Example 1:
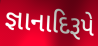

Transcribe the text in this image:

જ્ઞાનાદિરૂપે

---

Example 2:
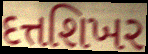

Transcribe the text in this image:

દત્તશિખર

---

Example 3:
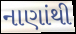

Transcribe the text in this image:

નાણાંથી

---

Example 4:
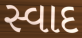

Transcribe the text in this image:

સ્વાદ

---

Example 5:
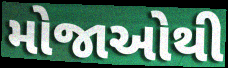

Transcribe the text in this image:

મોજાઓથી